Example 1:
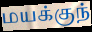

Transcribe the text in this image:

மயக்குந்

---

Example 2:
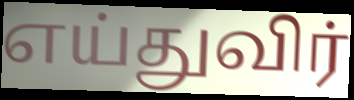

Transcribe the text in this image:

எய்துவிர்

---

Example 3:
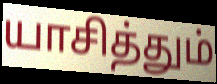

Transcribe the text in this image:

யாசித்தும்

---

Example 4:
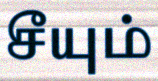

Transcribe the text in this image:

சீயும்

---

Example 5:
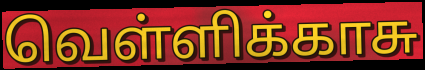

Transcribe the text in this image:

வெள்ளிக்காசு